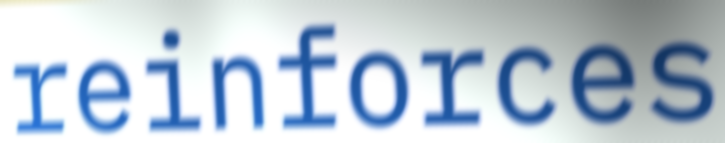
reinforces